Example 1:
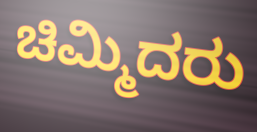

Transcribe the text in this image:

ಚಿಮ್ಮಿದರು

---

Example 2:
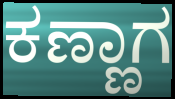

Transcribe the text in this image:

ಕಣ್ಣಾಗ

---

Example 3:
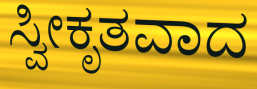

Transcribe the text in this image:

ಸ್ವೀಕೃತವಾದ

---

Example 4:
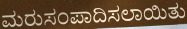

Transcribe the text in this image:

ಮರುಸಂಪಾದಿಸಲಾಯಿತು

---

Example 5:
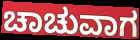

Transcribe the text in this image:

ಚಾಚುವಾಗ